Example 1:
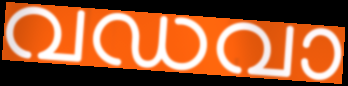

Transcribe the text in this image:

വഡവാ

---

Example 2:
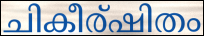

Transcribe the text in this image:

ചികീര്ഷിതം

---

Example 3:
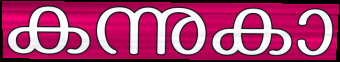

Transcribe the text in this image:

കന്നുകാ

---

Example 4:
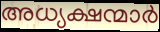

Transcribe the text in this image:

അധ്യക്ഷന്മാർ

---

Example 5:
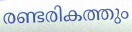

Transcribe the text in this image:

രണ്ടരികത്തും